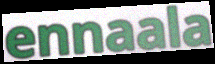
ennaala